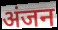
अंजन